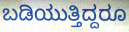
ಬಡಿಯುತ್ತಿದ್ದರೂ